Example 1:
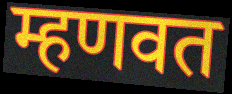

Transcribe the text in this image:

म्हणवत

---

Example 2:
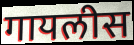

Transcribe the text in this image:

गायलीस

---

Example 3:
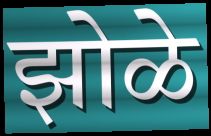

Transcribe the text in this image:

झोळे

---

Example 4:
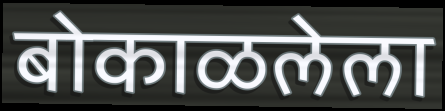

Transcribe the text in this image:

बोकाळलेला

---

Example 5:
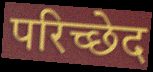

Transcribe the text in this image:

परिच्छेद